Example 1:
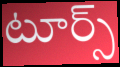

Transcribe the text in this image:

టూర్స్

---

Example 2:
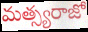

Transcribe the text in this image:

మత్స్యరాజో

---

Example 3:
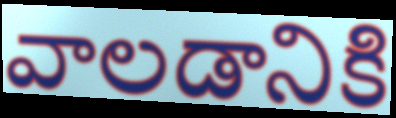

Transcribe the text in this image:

వాలడానికి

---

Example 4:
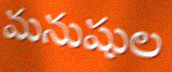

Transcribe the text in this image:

మనుషుల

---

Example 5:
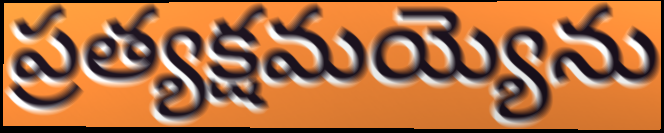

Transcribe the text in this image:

ప్రత్యక్షమయ్యెను